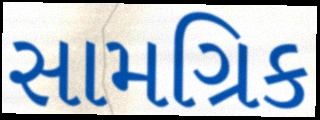
સામગ્રિક